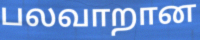
பலவாறான